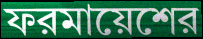
ফরমায়েশের